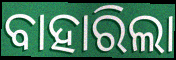
ବାହାରିଲା